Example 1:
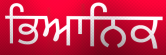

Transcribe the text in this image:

ਭਿਆਨਿਕ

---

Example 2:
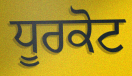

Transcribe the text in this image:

ਧੂਰਕੋਟ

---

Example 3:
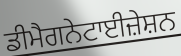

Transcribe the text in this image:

ਡੀਮੈਗਨੇਟਾਈਜ਼ੇਸ਼ਨ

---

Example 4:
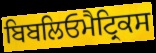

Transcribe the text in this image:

ਬਿਬਲਿਓਮੈਟ੍ਰਿਕਸ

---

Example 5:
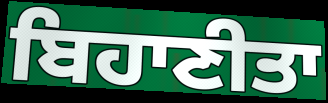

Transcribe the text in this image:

ਬਿਹਾਣੀਤਾ